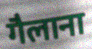
गैलाना